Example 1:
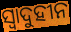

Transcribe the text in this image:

ସ୍ୱାଦୁହୀନ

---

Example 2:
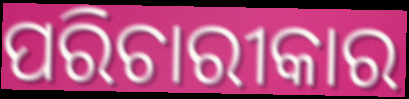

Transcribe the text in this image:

ପରିଚାରୀକାର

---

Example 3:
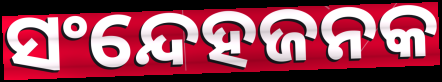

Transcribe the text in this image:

ସଂନ୍ଦେହଜନକ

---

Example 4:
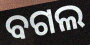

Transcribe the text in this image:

ବଗଲ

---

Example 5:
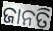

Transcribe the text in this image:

ଜାନତି